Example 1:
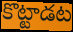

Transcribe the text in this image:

కొట్టాడట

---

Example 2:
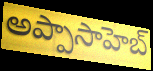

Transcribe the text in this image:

అప్పాసాహెబ్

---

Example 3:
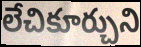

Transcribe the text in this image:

లేచికూర్చుని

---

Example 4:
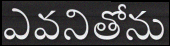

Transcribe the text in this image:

ఎవనితోను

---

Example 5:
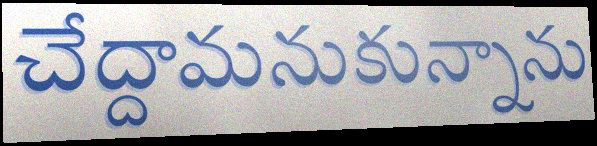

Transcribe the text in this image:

చేద్దామనుకున్నాను